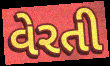
વેરતી